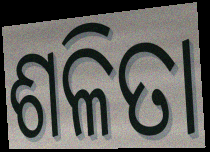
ଶଳିତା